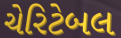
ચેરિટેબલ